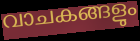
വാചകങ്ങളും